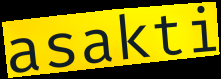
asakti